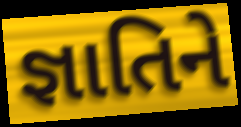
જ્ઞાતિને